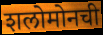
शलोमोनची